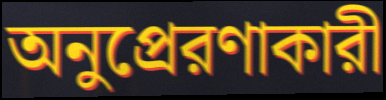
অনুপ্রেরণাকারী